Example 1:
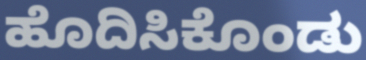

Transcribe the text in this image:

ಹೊದಿಸಿಕೊಂಡು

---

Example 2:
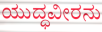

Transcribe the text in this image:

ಯುದ್ಧವೀರನು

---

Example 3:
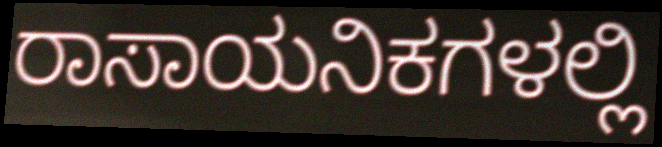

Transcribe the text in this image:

ರಾಸಾಯನಿಕಗಳಲ್ಲಿ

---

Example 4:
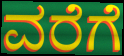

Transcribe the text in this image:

ವರೆಗೆ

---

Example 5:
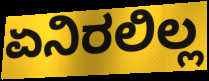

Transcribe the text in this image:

ಏನಿರಲಿಲ್ಲ